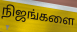
நிஜங்களை